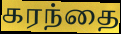
கரந்தை